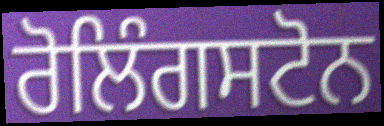
ਰੋਲਿੰਗਸਟੋਨ